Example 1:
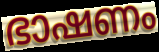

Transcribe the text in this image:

ഭാഷണം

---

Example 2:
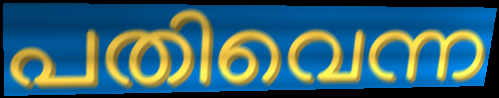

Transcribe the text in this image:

പതിവെന്ന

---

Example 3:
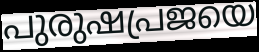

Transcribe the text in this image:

പുരുഷപ്രജയെ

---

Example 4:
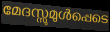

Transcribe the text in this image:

മേദസ്സുമുൾപ്പെടെ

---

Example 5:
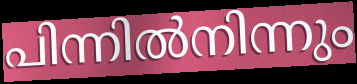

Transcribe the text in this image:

പിന്നിൽനിന്നും